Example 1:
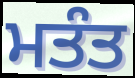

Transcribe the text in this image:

ਮਤੰਤ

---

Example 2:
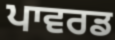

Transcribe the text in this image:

ਪਾਵਰਡ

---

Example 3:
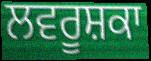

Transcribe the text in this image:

ਲਵਰੂਸ਼ਕਾ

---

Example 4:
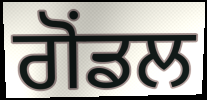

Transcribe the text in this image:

ਗੋਂਡਲ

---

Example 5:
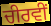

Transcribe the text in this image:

ਚੀਰਵੀਂ